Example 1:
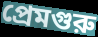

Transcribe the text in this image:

প্রেমগুরু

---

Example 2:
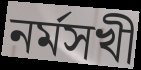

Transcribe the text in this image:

নর্মসখী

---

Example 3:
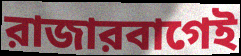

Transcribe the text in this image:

রাজারবাগেই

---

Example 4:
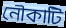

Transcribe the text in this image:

নৌকাটি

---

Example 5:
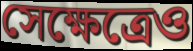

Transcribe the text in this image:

সেক্ষেত্রেও